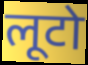
लूटो